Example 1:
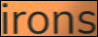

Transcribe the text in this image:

irons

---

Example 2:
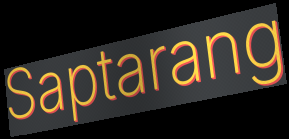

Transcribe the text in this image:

Saptarang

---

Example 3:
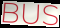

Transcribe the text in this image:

BUS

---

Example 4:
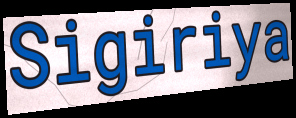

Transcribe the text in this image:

Sigiriya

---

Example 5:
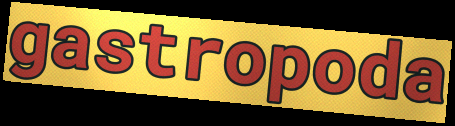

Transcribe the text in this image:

gastropoda